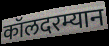
कॉलदरम्यान